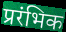
प्ररंभिक